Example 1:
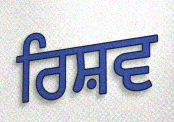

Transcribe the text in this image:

ਰਿਸ਼ਵ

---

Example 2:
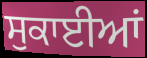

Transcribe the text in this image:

ਸੁਕਾਈਆਂ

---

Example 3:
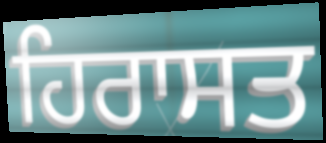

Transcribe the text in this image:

ਹਿਰਾਸਤ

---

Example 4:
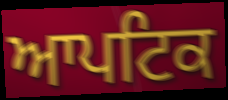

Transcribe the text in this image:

ਆਪਟਿਕ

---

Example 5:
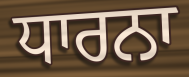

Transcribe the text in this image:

ਧਾਰਨਾ